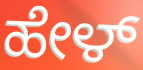
ಹೇಳ್